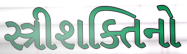
સ્ત્રીશક્તિનો